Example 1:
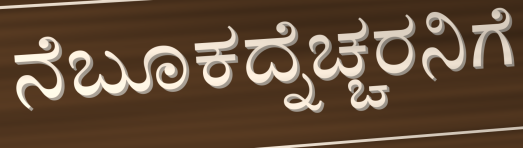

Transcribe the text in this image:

ನೆಬೂಕದ್ನೆಚ್ಚರನಿಗೆ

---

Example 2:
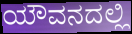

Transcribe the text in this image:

ಯೌವನದಲ್ಲಿ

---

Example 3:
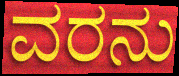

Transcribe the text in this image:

ವರನು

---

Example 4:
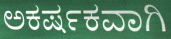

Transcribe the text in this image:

ಅಕರ್ಷಕವಾಗಿ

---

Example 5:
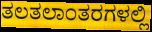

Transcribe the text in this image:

ತಲತಲಾಂತರಗಳಲ್ಲಿ